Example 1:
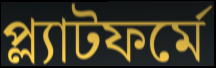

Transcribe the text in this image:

প্ল্যাটফর্মে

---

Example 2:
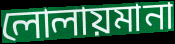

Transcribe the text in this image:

লোলায়মানা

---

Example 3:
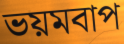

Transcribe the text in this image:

ভয়মবাপ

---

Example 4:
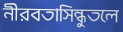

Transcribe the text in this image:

নীরবতাসিন্ধুতলে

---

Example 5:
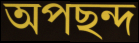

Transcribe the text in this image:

অপছন্দ